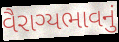
વૈરાગ્યભાવનું